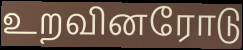
உறவினரோடு